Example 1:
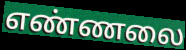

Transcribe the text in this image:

எண்ணலை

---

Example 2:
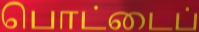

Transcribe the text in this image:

பொட்டைப்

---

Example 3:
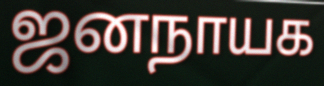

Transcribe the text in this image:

ஜனநாயக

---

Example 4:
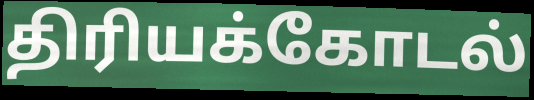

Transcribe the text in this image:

திரியக்கோடல்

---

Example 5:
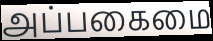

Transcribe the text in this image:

அப்பகைமை